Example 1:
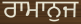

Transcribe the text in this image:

ਰਾਮਾਨੁਜ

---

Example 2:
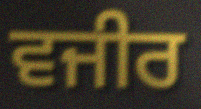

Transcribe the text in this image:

ਵਜੀਰ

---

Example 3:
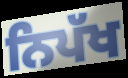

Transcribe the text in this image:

ਨਿਪੱਖ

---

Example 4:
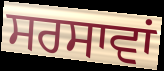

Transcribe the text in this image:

ਸਰਸਾਵਾਂ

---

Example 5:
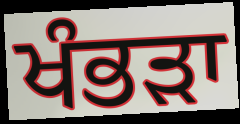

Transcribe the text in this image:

ਖੰਭੜਾ